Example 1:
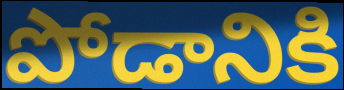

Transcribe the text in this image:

పోడానికి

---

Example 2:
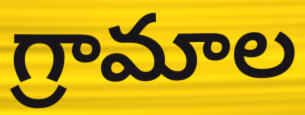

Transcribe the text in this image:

గ్రామాల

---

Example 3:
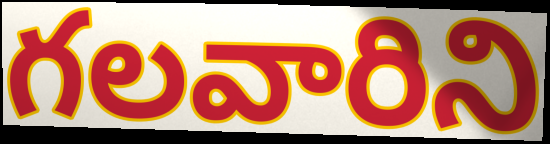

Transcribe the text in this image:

గలవారిని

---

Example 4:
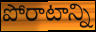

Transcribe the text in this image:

పోరాటాన్ని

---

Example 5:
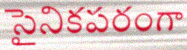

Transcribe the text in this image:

సైనికపరంగా